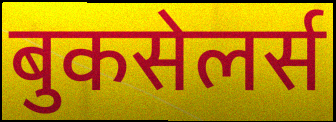
बुकसेलर्स